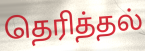
தெரித்தல்